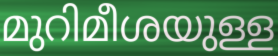
മുറിമീശയുള്ള